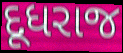
દૂધરાજ